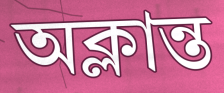
অক্লান্ত